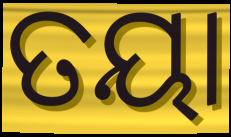
ତୟା